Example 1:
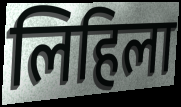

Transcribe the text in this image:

लिहिला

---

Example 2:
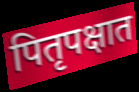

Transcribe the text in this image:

पितृपक्षात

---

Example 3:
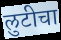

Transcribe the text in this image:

लुटीचा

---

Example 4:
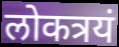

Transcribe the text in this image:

लोकत्रयं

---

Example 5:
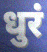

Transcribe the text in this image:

धुरं